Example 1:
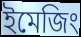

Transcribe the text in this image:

ইমেজিং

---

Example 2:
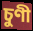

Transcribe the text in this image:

চুণী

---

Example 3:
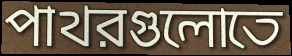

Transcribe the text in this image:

পাথরগুলোতে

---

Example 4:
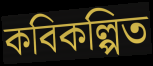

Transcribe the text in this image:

কবিকল্পিত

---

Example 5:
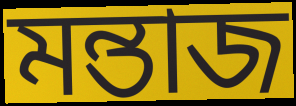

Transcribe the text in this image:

মন্তাজ